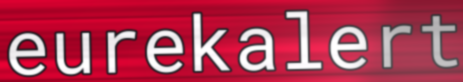
eurekalert